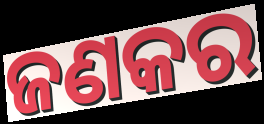
ଜଣକର